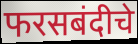
फरसबंदीचे